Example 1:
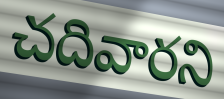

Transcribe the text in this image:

చదివారని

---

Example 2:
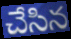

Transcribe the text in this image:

చేసిన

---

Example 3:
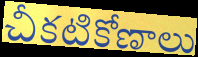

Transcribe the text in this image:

చీకటికోణాలు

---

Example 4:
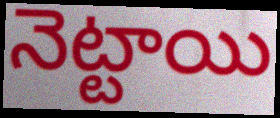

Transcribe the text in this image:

నెట్టాయి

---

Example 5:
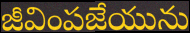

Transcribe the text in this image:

జీవింపజేయును